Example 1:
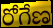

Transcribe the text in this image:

రోగేణ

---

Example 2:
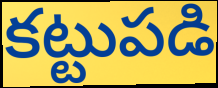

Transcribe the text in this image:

కట్టుపడి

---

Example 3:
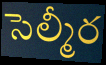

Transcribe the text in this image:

సెల్మీర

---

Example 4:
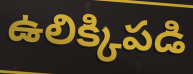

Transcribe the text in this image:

ఉలిక్కిపడి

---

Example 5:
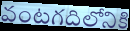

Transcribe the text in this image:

వంటగదిలోనికి